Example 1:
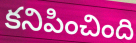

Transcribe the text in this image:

కనిపించింది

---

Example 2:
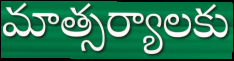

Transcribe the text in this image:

మాత్సర్యాలకు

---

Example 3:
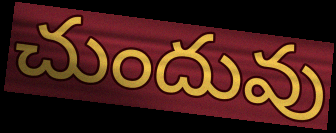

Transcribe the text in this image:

చుందువు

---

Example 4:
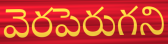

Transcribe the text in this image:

వెరపెరుగని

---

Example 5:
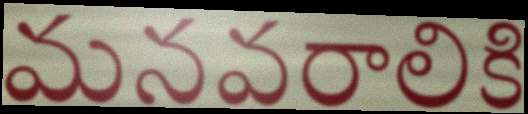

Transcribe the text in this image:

మనవరాలికి